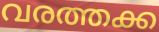
വരത്തക്ക